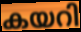
കയറി